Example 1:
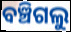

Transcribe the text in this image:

ବଞ୍ଚିଗଲୁ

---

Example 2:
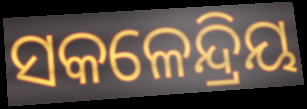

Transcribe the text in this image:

ସକଳେନ୍ଦ୍ରିୟ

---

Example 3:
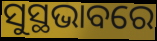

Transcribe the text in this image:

ସୁସ୍ଥଭାବରେ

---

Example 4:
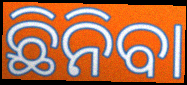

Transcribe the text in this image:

ଛିନିବା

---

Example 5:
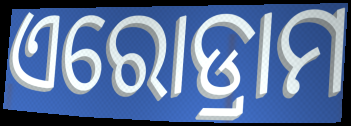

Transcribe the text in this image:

ଏରୋଡ୍ରାମ